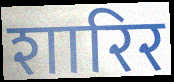
शारिर